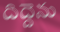
దిద్దెను